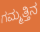
ಗಮ್ಮತ್ತಿನ